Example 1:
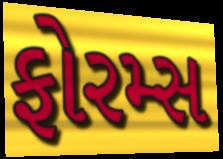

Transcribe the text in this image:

ફોરમ્સ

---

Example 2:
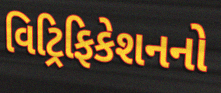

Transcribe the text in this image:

વિટ્રિફિકેશનનો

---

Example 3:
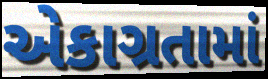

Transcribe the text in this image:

એકાગ્રતામાં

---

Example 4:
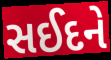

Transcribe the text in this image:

સઈદને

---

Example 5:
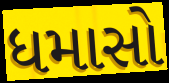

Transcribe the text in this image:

ધમાસો